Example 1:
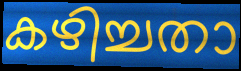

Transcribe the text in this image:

കഴിച്ചതാ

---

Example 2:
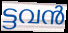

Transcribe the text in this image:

ട്ടവൻ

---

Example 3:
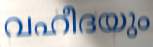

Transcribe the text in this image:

വഹീദയും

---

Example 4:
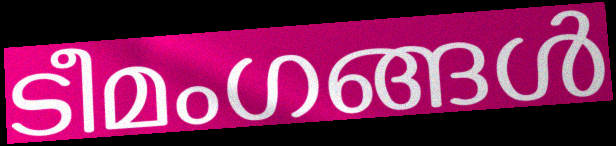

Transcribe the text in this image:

ടീമംഗങ്ങൾ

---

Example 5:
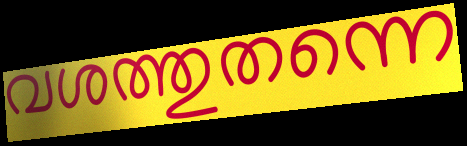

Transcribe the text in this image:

വശത്തുതന്നെ